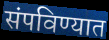
संपविण्यात